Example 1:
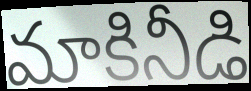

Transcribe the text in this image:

మాకినీడి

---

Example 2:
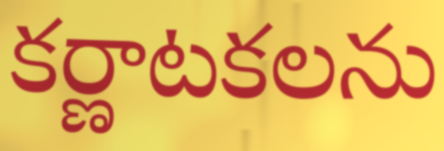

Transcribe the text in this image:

కర్ణాటకలను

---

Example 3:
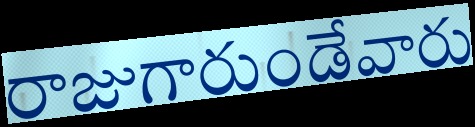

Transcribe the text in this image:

రాజుగారుండేవారు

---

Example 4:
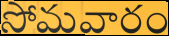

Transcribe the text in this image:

సోమవారం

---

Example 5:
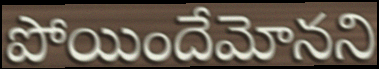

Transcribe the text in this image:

పోయిందేమోనని